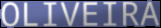
OLIVEIRA